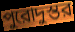
পুরোদুস্তর